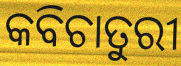
କବିଚାତୁରୀ